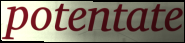
potentate